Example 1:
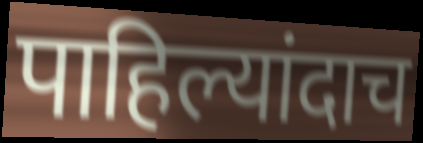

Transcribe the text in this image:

पाहिल्यांदाच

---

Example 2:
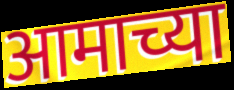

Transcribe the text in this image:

आमाच्या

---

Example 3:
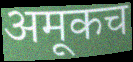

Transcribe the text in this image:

अमूकच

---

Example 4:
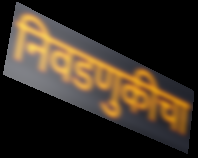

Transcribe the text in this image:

निवडणुकीचा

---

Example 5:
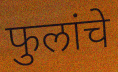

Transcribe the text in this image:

फुलांचे